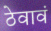
ठेवावं